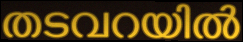
തടവറയിൽ